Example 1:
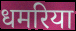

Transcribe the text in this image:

धमरिया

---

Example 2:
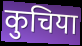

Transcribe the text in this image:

कुचिया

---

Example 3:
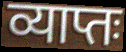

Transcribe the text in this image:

व्याप्तः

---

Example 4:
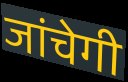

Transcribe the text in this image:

जांचेगी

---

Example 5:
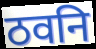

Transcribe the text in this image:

ठवनि